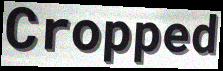
Cropped